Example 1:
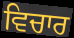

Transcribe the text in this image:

ਵਿਚਾਰ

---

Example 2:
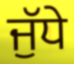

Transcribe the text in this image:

ਜੁੱਧੇ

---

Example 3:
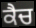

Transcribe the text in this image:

ਕੈਚ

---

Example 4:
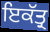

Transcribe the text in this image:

ਇਕੱਤ੍ਰ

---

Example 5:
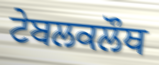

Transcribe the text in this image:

ਟੇਬਲਕਲੌਥ